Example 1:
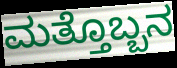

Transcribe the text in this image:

ಮತ್ತೊಬ್ಬನ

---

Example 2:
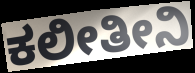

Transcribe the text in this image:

ಕಲೀತೀನಿ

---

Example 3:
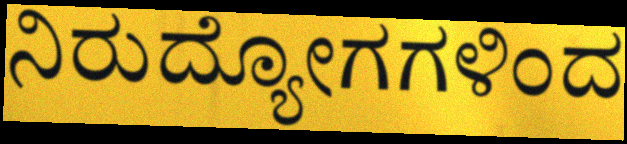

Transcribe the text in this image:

ನಿರುದ್ಯೋಗಗಳಿಂದ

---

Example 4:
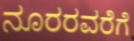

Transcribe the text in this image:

ನೂರರವರೆಗೆ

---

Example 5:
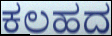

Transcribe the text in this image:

ಕಲಹದ